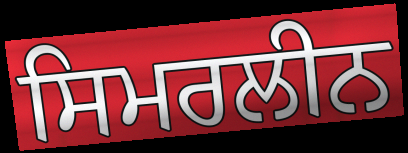
ਸਿਮਰਲੀਨ